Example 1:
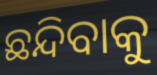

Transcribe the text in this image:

ଛନ୍ଦିବାକୁ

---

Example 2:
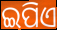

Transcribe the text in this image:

ଇପିଏ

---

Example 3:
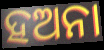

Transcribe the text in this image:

ହଅନା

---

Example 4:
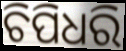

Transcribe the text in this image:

ଚିପିଧରି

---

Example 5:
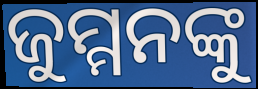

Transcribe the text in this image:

ଜୁମ୍ମନଙ୍କୁ